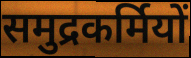
समुद्रकर्मियों